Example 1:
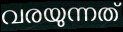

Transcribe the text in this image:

വരയുന്നത്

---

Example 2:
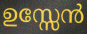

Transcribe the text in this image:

ഉസ്സേൻ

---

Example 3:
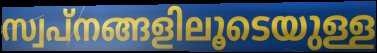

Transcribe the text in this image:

സ്വപ്നങ്ങളിലൂടെയുള്ള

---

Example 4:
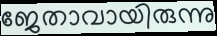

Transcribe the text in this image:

ജേതാവായിരുന്നു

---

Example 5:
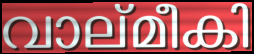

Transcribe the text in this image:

വാല്മീകി